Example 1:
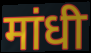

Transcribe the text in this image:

मांधी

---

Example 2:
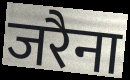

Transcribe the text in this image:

जरैना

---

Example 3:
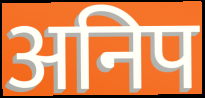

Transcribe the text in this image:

अनिप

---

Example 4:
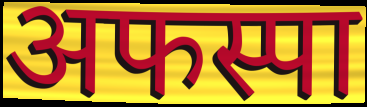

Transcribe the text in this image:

अफस्पा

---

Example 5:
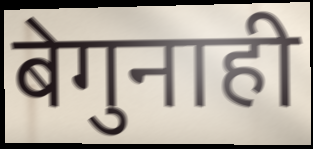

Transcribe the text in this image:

बेगुनाही